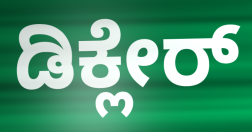
ಡಿಕ್ಲೇರ್